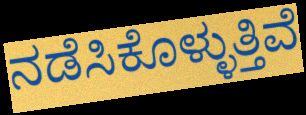
ನಡೆಸಿಕೊಳ್ಳುತ್ತಿವೆ